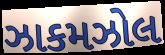
ઝાકમઝોલ